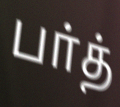
பர்த்